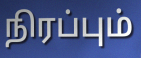
நிரப்பும்